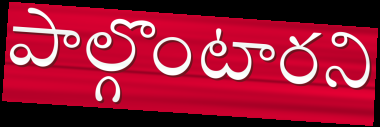
పాల్గొంటారని